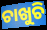
ଚାଖୁଚି